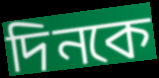
দিনকে